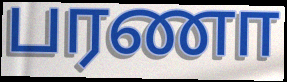
பரணா